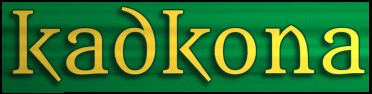
kadkona